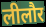
लीलौर